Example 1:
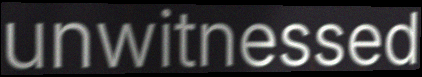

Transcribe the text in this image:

unwitnessed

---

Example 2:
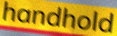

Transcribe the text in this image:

handhold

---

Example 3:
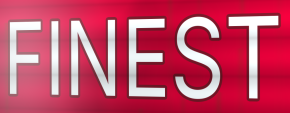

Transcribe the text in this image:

FINEST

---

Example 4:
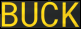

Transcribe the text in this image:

BUCK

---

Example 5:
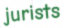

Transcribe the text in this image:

jurists